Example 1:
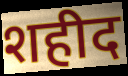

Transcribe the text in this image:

शहीद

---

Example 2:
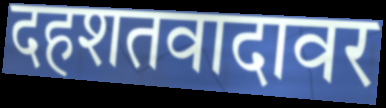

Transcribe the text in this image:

दहशतवादावर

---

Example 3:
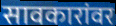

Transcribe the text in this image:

सावकारांवर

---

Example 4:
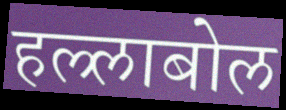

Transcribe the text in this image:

हल्लाबोल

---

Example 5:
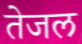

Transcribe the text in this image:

तेजल